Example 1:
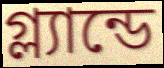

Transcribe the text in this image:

গ্ল্যান্ডে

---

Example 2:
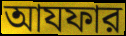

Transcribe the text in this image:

আযফার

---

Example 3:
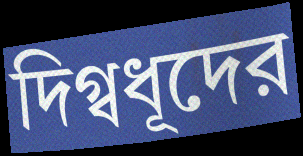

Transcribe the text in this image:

দিগ্বধূদের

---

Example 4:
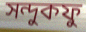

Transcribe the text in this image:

সন্দুকফু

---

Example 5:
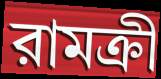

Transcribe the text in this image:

রামক্রী